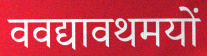
ववद्यावथमयों